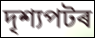
দৃশ্যপটৰ